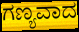
ಗಣ್ಯವಾದ